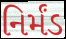
નિર્મંડ